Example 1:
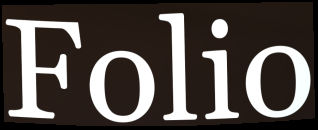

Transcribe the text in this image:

Folio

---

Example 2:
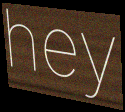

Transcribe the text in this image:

hey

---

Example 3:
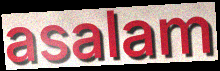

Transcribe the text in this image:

asalam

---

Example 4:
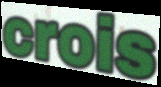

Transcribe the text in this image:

crois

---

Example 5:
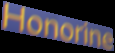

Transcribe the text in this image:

Honorine